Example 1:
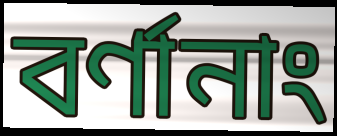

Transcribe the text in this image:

বর্ণানাং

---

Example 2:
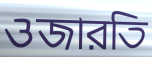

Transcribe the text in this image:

ওজারতি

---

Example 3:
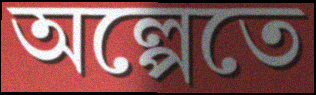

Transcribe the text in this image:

অল্পেতে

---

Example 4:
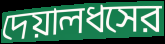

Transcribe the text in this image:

দেয়ালধসের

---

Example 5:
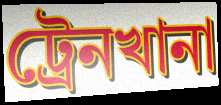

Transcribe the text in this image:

ট্রেনখানা